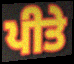
ਪੀਤੇ